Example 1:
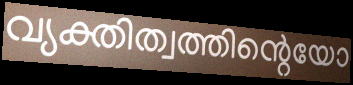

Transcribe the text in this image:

വ്യക്തിത്വത്തിന്റെയോ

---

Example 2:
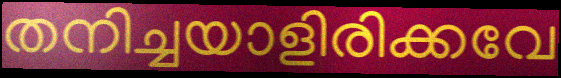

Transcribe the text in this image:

തനിച്ചയാളിരിക്കവേ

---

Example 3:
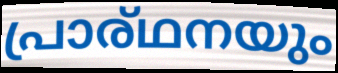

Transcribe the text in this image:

പ്രാര്ഥനയും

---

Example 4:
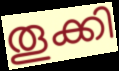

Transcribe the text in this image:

തൂക്കി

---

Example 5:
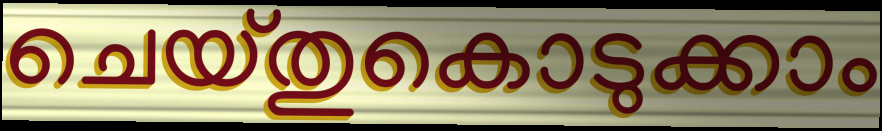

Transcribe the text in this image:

ചെയ്തുകൊടുക്കാം